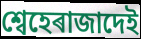
শ্বেহেৰাজাদেই